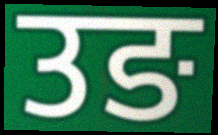
उङ